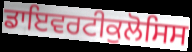
ਡਾਇਵਰਟੀਕੁਲੋਸਿਸ